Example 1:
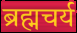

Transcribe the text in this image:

ब्रह्मचर्य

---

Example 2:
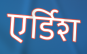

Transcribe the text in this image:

एर्डिश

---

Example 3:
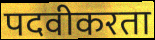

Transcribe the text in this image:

पदवीकरता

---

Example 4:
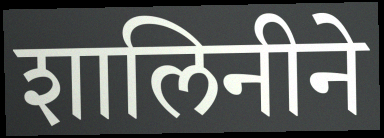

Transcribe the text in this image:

शालिनीने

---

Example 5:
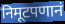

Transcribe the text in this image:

निमूटपणानं